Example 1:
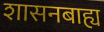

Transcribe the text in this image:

शासनबाह्य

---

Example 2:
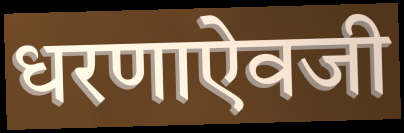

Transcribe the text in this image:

धरणाऐवजी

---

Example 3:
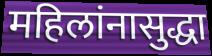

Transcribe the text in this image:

महिलांनासुद्धा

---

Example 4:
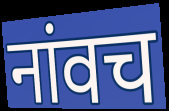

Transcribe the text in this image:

नांवच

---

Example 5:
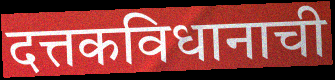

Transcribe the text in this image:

दत्तकविधानाची